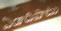
ఏడాదిపాటు